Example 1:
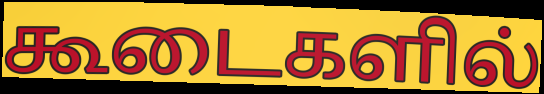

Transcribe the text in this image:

கூடைகளில்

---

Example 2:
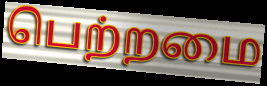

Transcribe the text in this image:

பெற்றமை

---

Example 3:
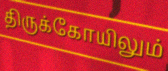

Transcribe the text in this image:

திருக்கோயிலும்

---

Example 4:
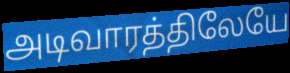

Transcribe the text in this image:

அடிவாரத்திலேயே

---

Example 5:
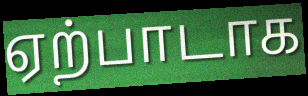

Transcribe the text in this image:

ஏற்பாடாக